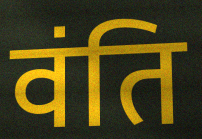
वंति